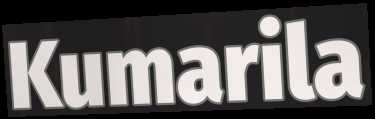
Kumarila